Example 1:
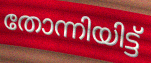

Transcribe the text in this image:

തോന്നിയിട്ട്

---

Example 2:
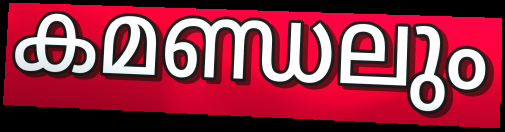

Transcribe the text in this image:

കമണ്ഡലും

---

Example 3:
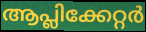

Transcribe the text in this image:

ആപ്ലിക്കേറ്റർ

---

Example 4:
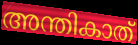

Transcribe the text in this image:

അന്തികാത്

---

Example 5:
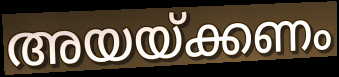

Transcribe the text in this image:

അയയ്ക്കണം